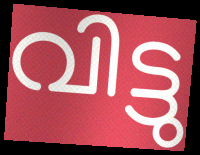
വിട്ടു